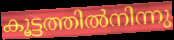
കൂട്ടത്തിൽനിന്നു